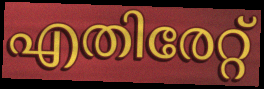
എതിരേറ്റ്